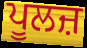
ਪੂਲਜ਼